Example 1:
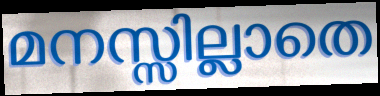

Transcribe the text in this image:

മനസ്സില്ലാതെ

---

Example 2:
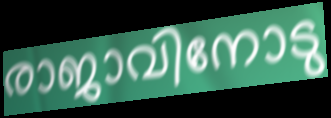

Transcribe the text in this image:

രാജാവിനോടു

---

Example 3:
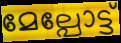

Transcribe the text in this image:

മേല്പോട്ട്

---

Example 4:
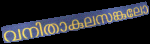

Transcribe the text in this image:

വനിതാകുലസങ്കുലോ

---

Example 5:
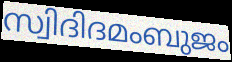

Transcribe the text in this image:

സ്വിദിദമംബുജം